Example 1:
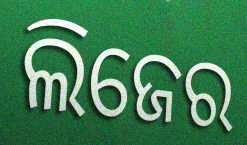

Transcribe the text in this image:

ଲିଜେର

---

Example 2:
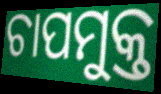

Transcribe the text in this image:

ଚାପମୁକ୍ତ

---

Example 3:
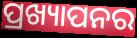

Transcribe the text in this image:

ପ୍ରଖ୍ୟାପନର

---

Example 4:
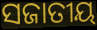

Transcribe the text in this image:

ସଜାତୀୟ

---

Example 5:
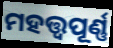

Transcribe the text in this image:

ମହତ୍ତ୍ଵପୂର୍ଣ୍ଣ